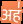
अह॑